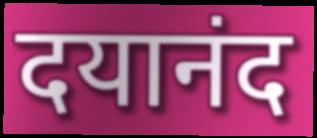
दयानंद